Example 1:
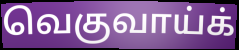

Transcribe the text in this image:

வெகுவாய்க்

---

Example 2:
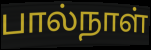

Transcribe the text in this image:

பால்நாள்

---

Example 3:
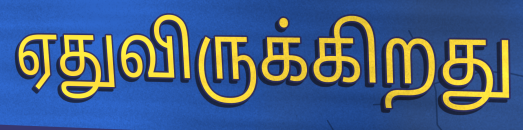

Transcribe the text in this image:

ஏதுவிருக்கிறது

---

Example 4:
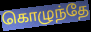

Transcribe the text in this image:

கொழுந்தே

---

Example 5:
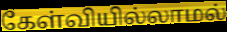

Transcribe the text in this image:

கேள்வியில்லாமல்